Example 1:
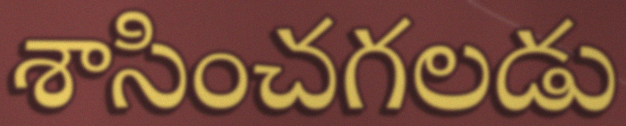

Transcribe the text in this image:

శాసించగలడు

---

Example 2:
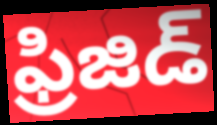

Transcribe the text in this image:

ఫ్రిజిడ్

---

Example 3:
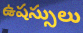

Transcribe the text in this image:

ఉషస్సులు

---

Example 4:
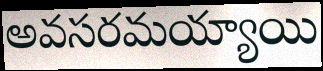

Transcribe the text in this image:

అవసరమయ్యాయి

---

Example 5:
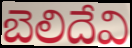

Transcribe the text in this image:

బెలిదేవి